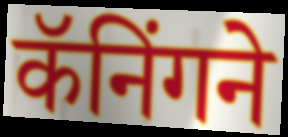
कॅनिंगने